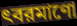
ৎবরমাণো